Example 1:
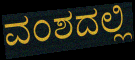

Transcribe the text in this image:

ವಂಶದಲ್ಲಿ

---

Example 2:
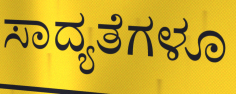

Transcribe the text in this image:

ಸಾದ್ಯತೆಗಳೂ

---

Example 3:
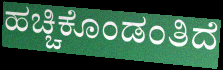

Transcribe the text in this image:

ಹಚ್ಚಿಕೊಂಡಂತಿದೆ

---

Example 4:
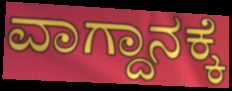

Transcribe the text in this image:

ವಾಗ್ದಾನಕ್ಕೆ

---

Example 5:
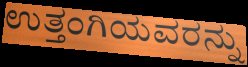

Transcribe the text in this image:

ಉತ್ತಂಗಿಯವರನ್ನು